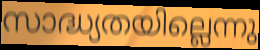
സാദ്ധ്യതയില്ലെന്നു